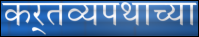
कर्तव्यपथाच्या